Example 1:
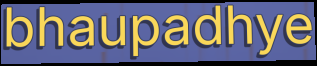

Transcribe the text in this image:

bhaupadhye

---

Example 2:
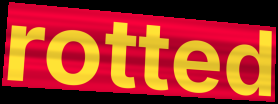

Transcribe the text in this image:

rotted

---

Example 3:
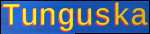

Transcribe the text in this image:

Tunguska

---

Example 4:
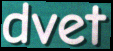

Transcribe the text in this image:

dvet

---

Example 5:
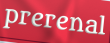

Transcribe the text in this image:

prerenal